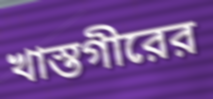
খাস্তগীরের